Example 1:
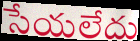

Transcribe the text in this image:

సేయలేదు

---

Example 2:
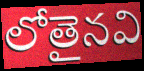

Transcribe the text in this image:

లోతైనవి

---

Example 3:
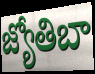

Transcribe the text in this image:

జ్యోతిబా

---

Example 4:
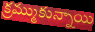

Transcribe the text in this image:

క్రమ్ముకున్నాయి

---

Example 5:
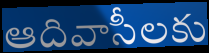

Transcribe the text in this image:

ఆదివాసీలకు